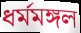
ধর্মমঙ্গল